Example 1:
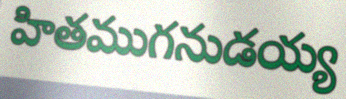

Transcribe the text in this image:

హితముగనుడయ్య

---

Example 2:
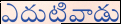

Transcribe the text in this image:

ఎదుటివాడు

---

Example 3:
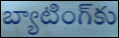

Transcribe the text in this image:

బ్యాటింగ్‌కు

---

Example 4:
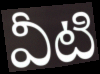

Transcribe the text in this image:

వీటి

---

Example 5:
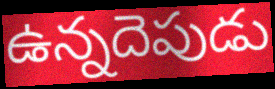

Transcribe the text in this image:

ఉన్నదెపుడు